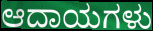
ಆದಾಯಗಳು